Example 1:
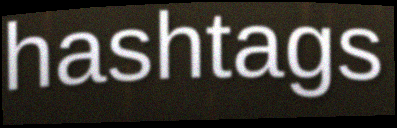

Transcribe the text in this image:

hashtags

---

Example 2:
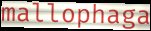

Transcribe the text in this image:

mallophaga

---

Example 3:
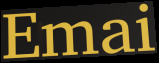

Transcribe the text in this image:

Emai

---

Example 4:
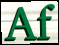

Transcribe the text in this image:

Af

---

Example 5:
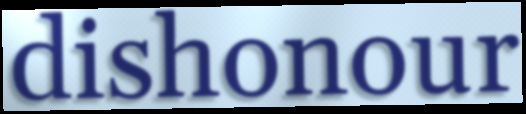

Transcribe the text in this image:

dishonour